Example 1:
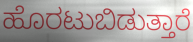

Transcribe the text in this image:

ಹೊರಟುಬಿಡುತ್ತಾರೆ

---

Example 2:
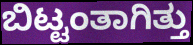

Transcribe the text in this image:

ಬಿಟ್ಟಂತಾಗಿತ್ತು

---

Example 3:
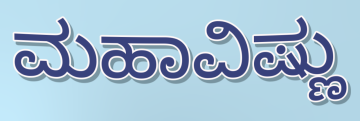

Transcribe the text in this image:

ಮಹಾವಿಷ್ಣು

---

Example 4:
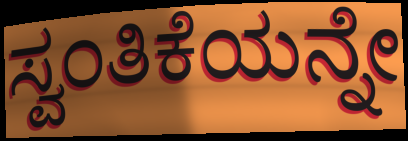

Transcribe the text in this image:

ಸ್ವಂತಿಕೆಯನ್ನೇ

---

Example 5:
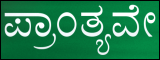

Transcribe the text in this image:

ಪ್ರಾಂತ್ಯವೇ